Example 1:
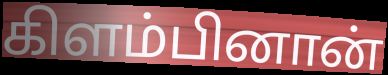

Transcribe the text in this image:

கிளம்பினான்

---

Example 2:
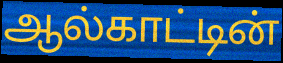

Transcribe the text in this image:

ஆல்காட்டின்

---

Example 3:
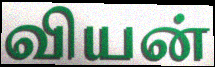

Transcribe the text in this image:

வியன்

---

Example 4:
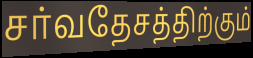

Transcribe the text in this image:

சர்வதேசத்திற்கும்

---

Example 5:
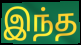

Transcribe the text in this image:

இந்த